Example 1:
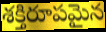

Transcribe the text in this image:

శక్తిరూపమైన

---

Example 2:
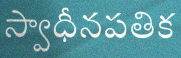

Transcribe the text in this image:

స్వాధీనపతిక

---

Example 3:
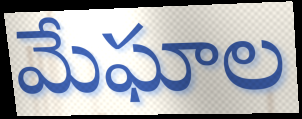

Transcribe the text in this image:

మేఘాల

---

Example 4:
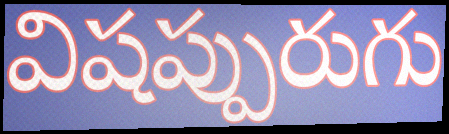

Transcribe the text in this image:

విషప్పురుగు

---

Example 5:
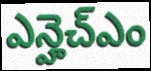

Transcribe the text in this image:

ఎన్హెచ్ఎం